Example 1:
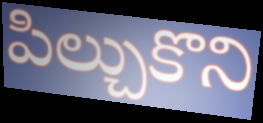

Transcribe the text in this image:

పిల్చుకొని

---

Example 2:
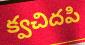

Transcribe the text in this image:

క్వచిదపి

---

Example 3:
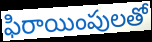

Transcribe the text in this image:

ఫిరాయింపులతో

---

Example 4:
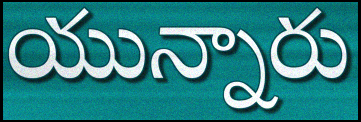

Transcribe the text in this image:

యున్నారు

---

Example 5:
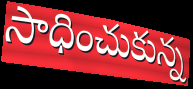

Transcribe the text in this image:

సాధించుకున్న